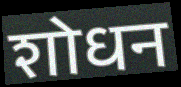
शोधन